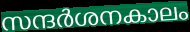
സന്ദർശനകാലം